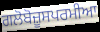
ਗਲੋਬੋਜ਼ੂਸਪਰਮੀਆ